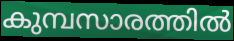
കുമ്പസാരത്തിൽ